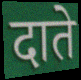
दाते